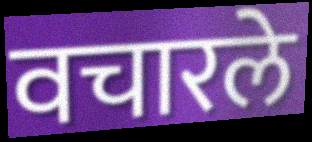
वचारले